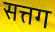
सत्तग